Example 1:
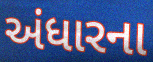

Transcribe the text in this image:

અંધારના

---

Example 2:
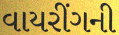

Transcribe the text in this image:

વાયરીંગની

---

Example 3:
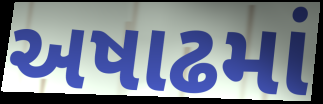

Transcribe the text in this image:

અષાઢમાં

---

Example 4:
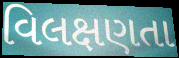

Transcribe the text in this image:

વિલક્ષણતા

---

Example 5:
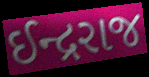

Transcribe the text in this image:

ઈન્દ્રરાજ